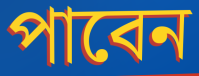
পাবেন